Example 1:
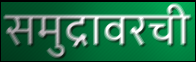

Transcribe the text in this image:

समुद्रावरची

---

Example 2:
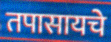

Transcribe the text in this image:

तपासायचे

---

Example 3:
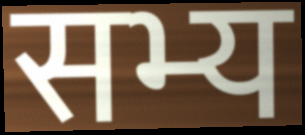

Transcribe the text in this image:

सभ्य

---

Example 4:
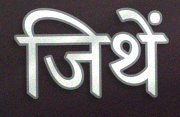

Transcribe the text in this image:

जिथें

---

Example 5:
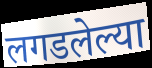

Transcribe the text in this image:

लगडलेल्या